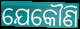
ଯେକୌଣି